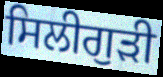
ਸਿਲੀਗੁੜੀ